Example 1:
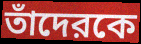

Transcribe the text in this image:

তাঁদেরকে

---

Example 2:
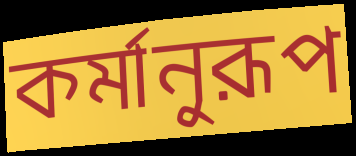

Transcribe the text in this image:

কর্মানুরূপ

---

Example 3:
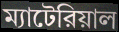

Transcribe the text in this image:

ম্যাটেরিয়াল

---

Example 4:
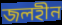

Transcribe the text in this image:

জলহীন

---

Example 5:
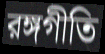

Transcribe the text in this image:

রঙ্গগীতি